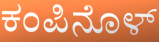
ಕಂಪಿನೊಳ್